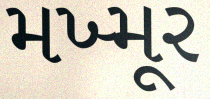
મખ્મૂર